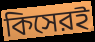
কিসেরই